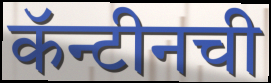
कॅन्टीनची